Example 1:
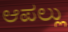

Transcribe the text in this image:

ಆಪಲ್ಲು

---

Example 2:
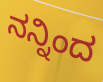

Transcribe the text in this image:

ನನ್ನಿಂದ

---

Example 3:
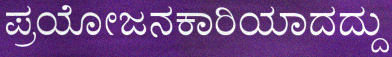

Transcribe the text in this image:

ಪ್ರಯೋಜನಕಾರಿಯಾದದ್ದು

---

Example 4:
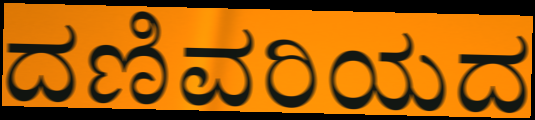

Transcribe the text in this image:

ದಣಿವರಿಯದ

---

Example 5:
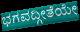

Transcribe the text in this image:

ಭಗವದ್ಗೀತೆಯೇ